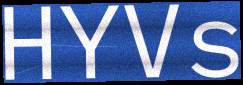
HYVs